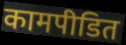
कामपीडित